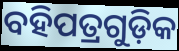
ବହିପତ୍ରଗୁଡ଼ିକ